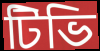
টিভি